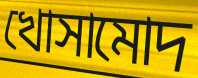
খোসামোদ